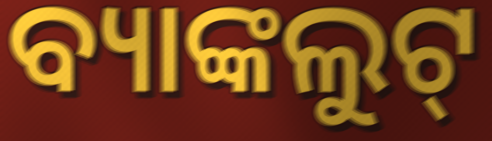
ବ୍ୟାଙ୍କଲୁଟ୍